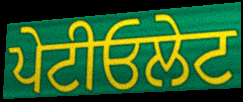
ਪੇਟੀਓਲੇਟ